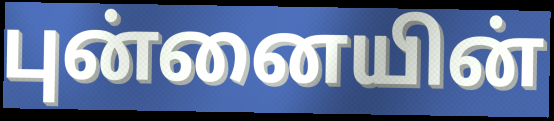
புன்னையின்